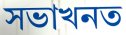
সভাখনত